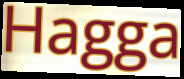
Hagga